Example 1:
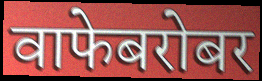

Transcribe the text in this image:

वाफेबरोबर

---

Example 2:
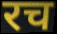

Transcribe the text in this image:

रच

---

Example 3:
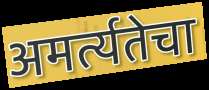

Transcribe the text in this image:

अमर्त्यतेचा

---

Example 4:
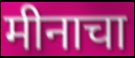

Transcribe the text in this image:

मीनाचा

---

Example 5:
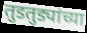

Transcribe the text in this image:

तुडतुड्यांच्या